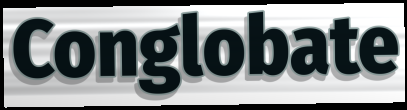
Conglobate